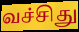
வச்சிது